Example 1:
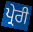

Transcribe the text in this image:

ਪ੍ਰੇਰੀ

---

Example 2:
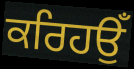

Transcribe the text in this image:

ਕਰਿਹਉਁ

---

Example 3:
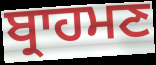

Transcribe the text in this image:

ਬ੍ਰਾਹਮਣ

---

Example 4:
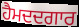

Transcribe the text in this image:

ਹੈਮਦਦਗਾਰ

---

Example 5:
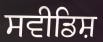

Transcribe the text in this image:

ਸਵੀਡਿਸ਼